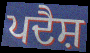
ਪਦੈਸ਼